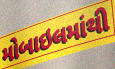
મોબાઇલમાંથી